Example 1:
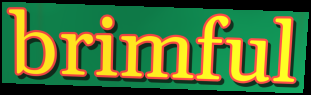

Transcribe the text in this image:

brimful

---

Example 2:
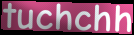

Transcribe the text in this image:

tuchchh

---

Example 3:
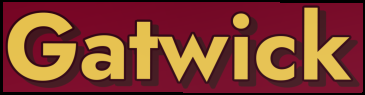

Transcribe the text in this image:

Gatwick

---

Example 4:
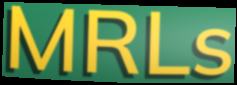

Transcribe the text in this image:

MRLs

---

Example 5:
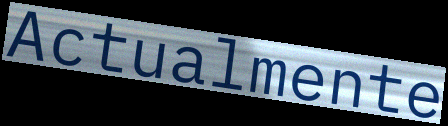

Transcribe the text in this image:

Actualmente